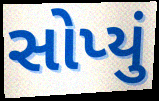
સોપ્યું